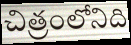
చిత్రంలోనిది